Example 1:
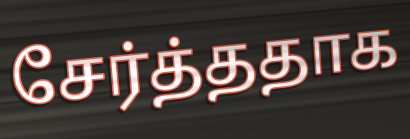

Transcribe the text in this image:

சேர்த்ததாக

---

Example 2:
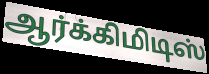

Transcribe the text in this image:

ஆர்க்கிமிடிஸ்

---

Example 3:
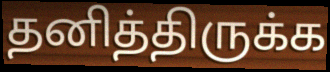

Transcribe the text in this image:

தனித்திருக்க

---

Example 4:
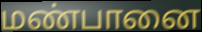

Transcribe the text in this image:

மண்பானை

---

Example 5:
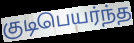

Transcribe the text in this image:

குடிபெயர்ந்த